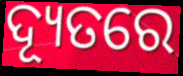
ଦ୍ୟୂତରେ